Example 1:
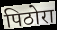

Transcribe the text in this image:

पिठोरा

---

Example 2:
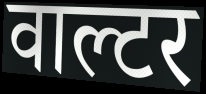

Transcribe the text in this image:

वाल्टर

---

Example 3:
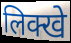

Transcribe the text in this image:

लिक्खे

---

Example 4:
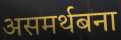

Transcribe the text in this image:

असमर्थबना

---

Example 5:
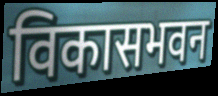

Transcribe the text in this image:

विकासभवन